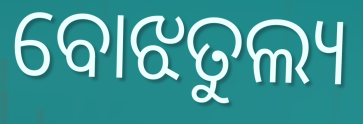
ବୋଝତୁଲ୍ୟ